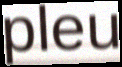
pleu